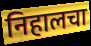
निहालचा